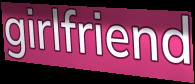
girlfriend